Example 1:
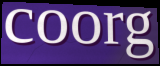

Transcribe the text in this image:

coorg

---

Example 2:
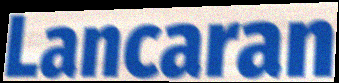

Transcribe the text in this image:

Lancaran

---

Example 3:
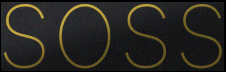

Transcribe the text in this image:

soss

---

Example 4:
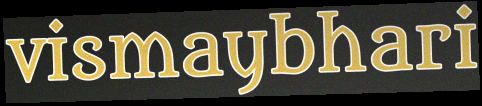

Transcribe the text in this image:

vismaybhari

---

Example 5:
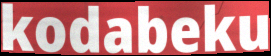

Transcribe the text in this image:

kodabeku